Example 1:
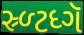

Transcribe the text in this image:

સ્ર્ળ્ટધ્ગૅ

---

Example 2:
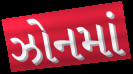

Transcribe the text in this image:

ઝોનમાં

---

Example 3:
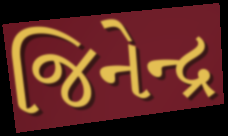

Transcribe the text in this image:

જિનેન્દ્ર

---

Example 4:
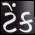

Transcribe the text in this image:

ટેંક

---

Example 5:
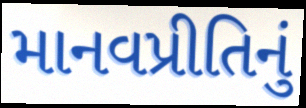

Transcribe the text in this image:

માનવપ્રીતિનું